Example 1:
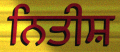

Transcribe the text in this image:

ਨਿਤੀਸ਼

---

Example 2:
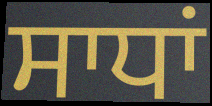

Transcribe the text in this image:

ਸਾਧਾਂ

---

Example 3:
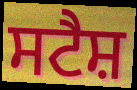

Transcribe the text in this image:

ਸਟੈਸ਼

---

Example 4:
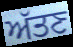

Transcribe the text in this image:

ਅੱਤਣ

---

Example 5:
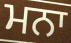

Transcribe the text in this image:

ਮਨਾ